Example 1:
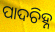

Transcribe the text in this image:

ପାଦଚିହ୍ନ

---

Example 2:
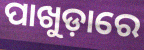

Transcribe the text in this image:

ପାଖୁଡ଼ାରେ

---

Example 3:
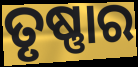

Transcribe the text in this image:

ତୃଷ୍ଣାର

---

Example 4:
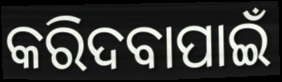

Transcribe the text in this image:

କରିଦବାପାଇଁ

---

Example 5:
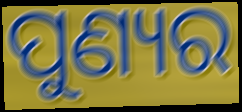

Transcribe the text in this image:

ପୁଣ୍ୟର